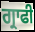
ਗ੍ਰਾਫੀ